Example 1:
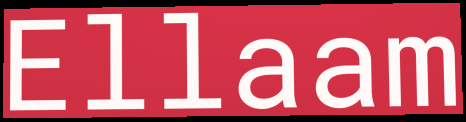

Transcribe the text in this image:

Ellaam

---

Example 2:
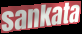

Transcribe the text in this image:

sankata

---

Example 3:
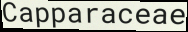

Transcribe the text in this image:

Capparaceae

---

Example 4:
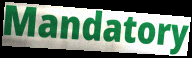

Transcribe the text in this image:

Mandatory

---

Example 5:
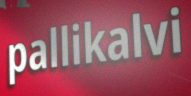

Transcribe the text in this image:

pallikalvi